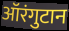
ऑरंगुटान